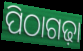
ପିଠାଗଢ଼ା